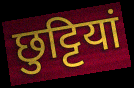
छुट्टियां